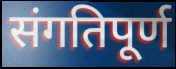
संगतिपूर्ण